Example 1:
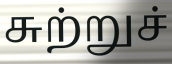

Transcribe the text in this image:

சுற்றுச்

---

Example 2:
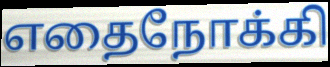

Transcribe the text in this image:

எதைநோக்கி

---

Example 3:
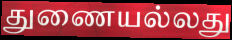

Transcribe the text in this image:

துணையல்லது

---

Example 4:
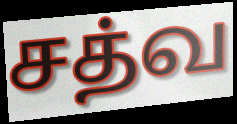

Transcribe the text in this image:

சத்வ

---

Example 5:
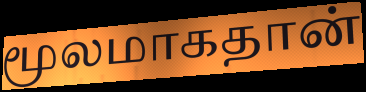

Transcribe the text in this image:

மூலமாகதான்